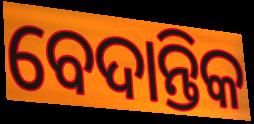
ବେଦାନ୍ତିକ